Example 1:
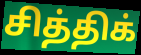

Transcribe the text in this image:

சித்திக்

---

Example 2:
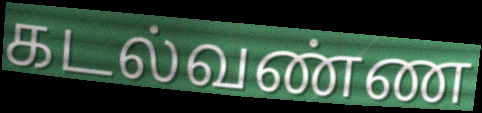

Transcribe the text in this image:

கடல்வண்ண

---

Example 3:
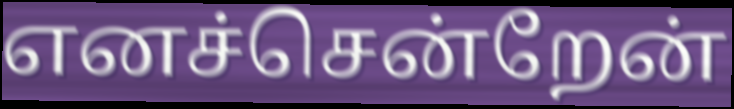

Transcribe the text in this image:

எனச்சென்றேன்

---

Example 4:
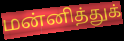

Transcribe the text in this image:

மன்னித்துக்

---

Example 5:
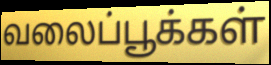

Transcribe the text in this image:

வலைப்பூக்கள்